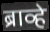
ब्राव्हे